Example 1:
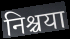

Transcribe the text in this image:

निश्चया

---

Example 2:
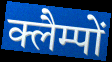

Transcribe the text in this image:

क्लैम्पों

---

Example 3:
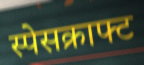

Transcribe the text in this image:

स्‍पेसक्राफ्ट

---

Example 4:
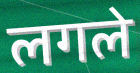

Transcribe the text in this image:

लगले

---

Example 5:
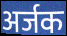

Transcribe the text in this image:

अर्जक